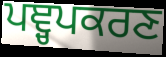
ਪਞ੍ਚਪਕਰਣ